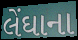
લેંઘાના